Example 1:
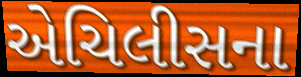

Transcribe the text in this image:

એચિલીસના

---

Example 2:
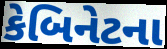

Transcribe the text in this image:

કેબિનેટના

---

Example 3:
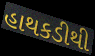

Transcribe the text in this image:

હાથકડીથી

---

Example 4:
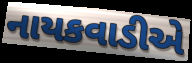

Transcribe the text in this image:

નાયકવાડીએ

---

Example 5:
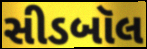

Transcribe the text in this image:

સીડબૉલ